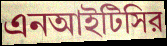
এনআইটিসির